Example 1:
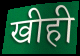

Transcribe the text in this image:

खीही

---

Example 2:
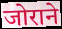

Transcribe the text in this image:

जोराने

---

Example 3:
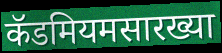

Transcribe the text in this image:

कॅडमियमसारख्या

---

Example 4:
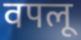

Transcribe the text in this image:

वपलू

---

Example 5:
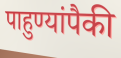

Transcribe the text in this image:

पाहुण्यांपैकी